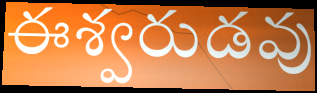
ఈశ్వరుడవు